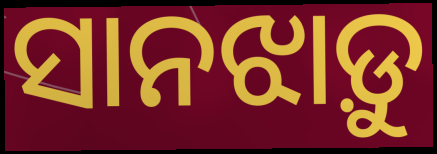
ସାନଝାଡ଼ୁ